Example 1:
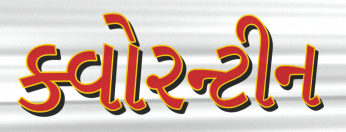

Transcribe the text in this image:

ક્વોરન્ટીન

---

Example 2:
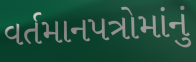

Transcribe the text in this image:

વર્તમાનપત્રોમાંનું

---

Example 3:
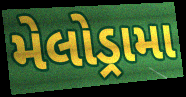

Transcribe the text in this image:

મેલોડ્રામા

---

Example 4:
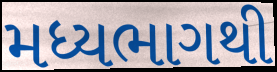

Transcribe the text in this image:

મધ્યભાગથી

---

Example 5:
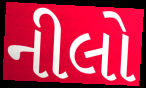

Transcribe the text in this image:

નીલો